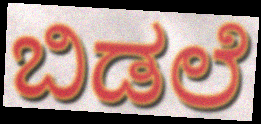
ಬಿಡಲೆ